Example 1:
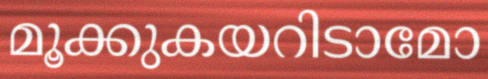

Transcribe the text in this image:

മൂക്കുകയറിടാമോ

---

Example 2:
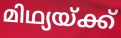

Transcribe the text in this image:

മിഥ്യയ്ക്ക്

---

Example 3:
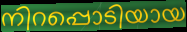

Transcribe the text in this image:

നിറപ്പൊടിയായ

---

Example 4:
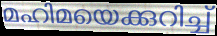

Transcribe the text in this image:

മഹിമയെക്കുറിച്ച്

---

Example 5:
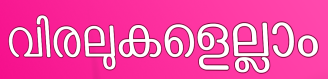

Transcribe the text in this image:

വിരലുകളെല്ലാം